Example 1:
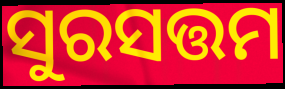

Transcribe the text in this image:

ସୁରସତ୍ତମ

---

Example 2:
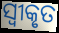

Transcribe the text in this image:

ସ୍ଵୀକୃତ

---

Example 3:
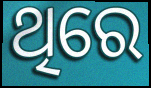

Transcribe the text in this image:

ଥିରେ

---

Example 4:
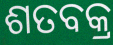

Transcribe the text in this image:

ଶତବକ୍ର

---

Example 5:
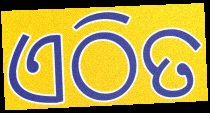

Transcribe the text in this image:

ଏଠିତ